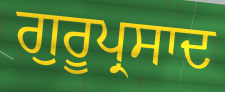
ਗੁਰੂਪ੍ਰਸਾਦ